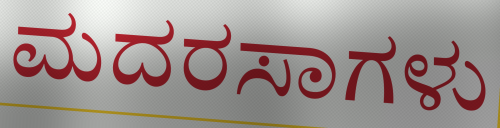
ಮದರಸಾಗಳು